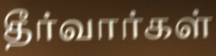
தீர்வார்கள்